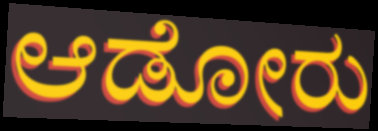
ಆಡೋರು